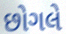
છોગલે